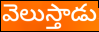
వెలుస్తాడు